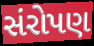
સંરોપણ